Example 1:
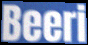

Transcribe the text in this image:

Beeri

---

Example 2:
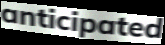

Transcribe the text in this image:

anticipated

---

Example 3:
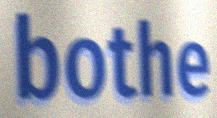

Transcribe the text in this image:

bothe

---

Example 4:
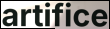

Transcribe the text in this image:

artifice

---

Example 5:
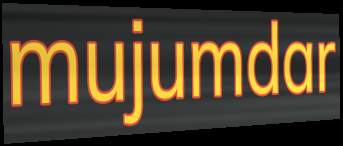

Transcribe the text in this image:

mujumdar